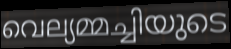
വെല്യമ്മച്ചിയുടെ